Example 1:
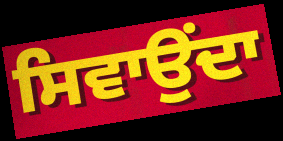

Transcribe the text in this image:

ਸਿਵਾਉਂਦਾ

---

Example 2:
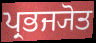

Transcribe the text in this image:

ਪ੍ਰਭਜ੍ਯੋਤ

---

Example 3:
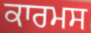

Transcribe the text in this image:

ਕਾਰਮਸ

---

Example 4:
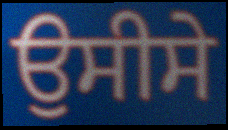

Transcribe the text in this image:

ਉਸੀਸੇ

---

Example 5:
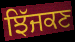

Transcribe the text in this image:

ਝਿੱਜਕਣ